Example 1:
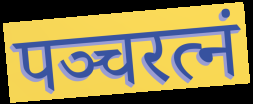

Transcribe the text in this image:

पञ्चरत्नं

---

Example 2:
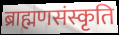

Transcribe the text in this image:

ब्राह्मणसंस्कृति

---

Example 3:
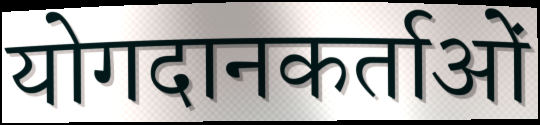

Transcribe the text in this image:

योगदानकर्ताओं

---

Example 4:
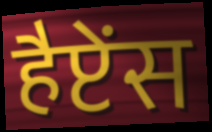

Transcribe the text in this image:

हैप्टेंस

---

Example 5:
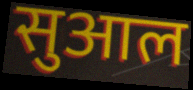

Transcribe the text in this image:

सुआल